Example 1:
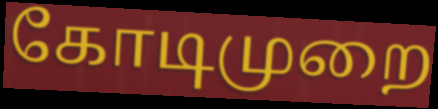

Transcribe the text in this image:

கோடிமுறை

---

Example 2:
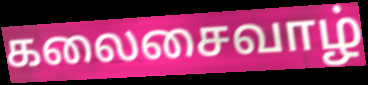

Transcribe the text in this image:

கலைசைவாழ்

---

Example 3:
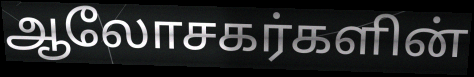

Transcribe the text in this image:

ஆலோசகர்களின்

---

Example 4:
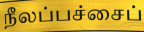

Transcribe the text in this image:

நீலப்பச்சைப்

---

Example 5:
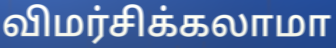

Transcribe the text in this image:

விமர்சிக்கலாமா